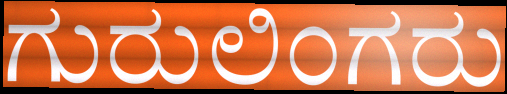
ಗುರುಲಿಂಗರು